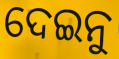
ଦେଇନୁ